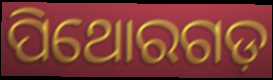
ପିଥୋରଗଡ଼